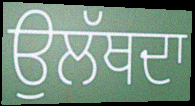
ਉਲੱਥਦਾ